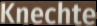
Knechte